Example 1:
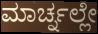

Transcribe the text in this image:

ಮಾರ್ಚ್ನಲ್ಲೇ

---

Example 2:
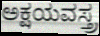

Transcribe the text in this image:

ಅಕ್ಷಯವಸ್ತ್ರ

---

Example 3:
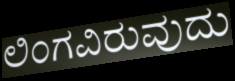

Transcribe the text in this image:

ಲಿಂಗವಿರುವುದು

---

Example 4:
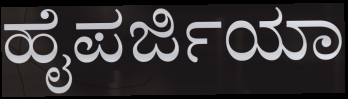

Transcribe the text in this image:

ಹೈಪರ್ಜಿಯಾ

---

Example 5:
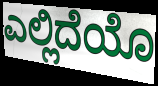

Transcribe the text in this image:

ಎಲ್ಲಿದೆಯೊ